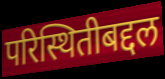
परिस्थितीबद्दल